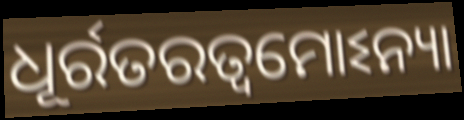
ଧୂର୍ରତରତ୍ୱମୋଽନ୍ୟା